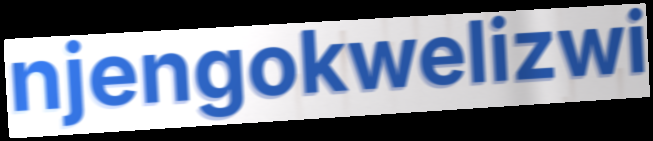
njengokwelizwi